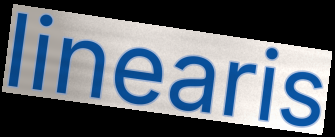
linearis